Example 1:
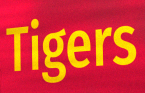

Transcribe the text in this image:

Tigers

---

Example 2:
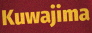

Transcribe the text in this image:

Kuwajima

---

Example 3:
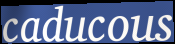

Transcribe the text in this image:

caducous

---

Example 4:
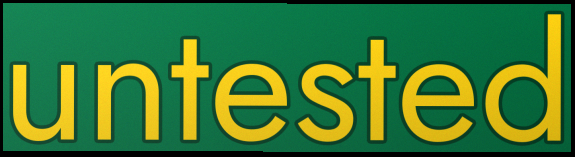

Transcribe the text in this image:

untested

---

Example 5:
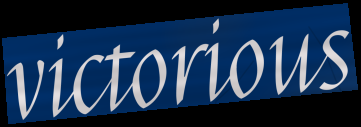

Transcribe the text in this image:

victorious